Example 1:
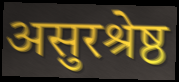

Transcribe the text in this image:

असुरश्रेष्ठ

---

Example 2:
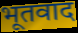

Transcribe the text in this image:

भूतवाद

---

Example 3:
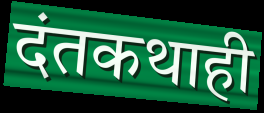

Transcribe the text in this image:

दंतकथाही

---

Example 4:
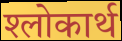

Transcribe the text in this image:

श्लोकार्थ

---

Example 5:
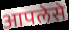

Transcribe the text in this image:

आपलेसे